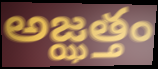
అజ్ఝత్తం